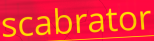
scabrator